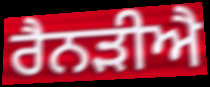
ਰੈਨੜੀਐ